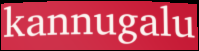
kannugalu